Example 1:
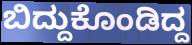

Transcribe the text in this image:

ಬಿದ್ದುಕೊಂಡಿದ್ದ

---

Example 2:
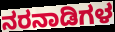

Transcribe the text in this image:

ನರನಾಡಿಗಳ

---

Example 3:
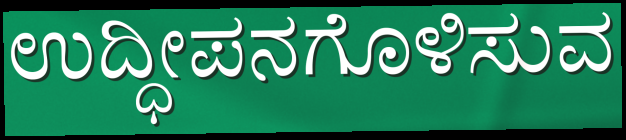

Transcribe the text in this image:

ಉದ್ಧೀಪನಗೊಳಿಸುವ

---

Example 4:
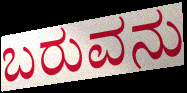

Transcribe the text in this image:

ಬರುವನು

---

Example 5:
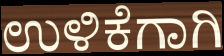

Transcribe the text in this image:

ಉಳಿಕೆಗಾಗಿ